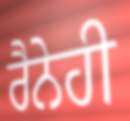
ਰੈਨੇਹੀ